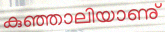
കുഞ്ഞാലിയാണു്